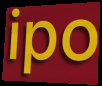
ipo